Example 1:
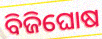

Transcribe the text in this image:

ବିଜିଘୋଷ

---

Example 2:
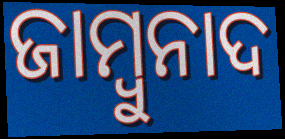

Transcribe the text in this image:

ଜାମ୍ବୁନାଦ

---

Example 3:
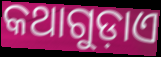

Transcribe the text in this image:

କଥାଗୁଡ଼ାଏ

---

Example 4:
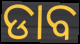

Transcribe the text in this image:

ଡାବ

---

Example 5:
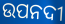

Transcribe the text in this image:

ଉପନଦୀ